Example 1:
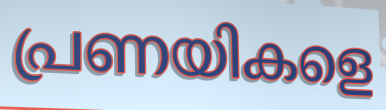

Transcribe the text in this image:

പ്രണയികളെ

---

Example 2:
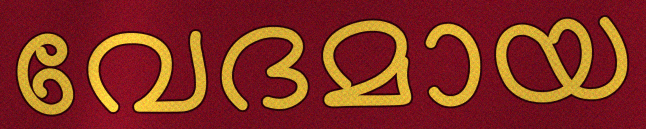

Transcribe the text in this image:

വേദമായ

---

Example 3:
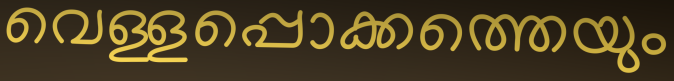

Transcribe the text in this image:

വെള്ളപ്പൊക്കത്തെയും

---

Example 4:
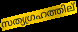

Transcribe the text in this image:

സത്യഗ്രഹത്തില്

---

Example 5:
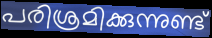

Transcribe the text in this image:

പരിശ്രമിക്കുന്നുണ്ട്